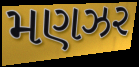
મણઝર